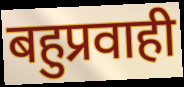
बहुप्रवाही